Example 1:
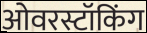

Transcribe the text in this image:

ओवरस्टॉकिंग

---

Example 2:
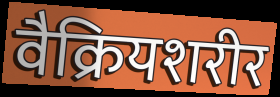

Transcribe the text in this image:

वैक्रियशरीर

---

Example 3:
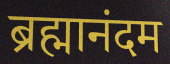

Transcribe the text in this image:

ब्रह्मानंदम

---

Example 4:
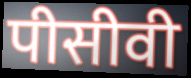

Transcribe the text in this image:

पीसीवी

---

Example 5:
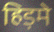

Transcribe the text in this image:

हिड़मे